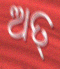
ଅତ୍